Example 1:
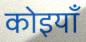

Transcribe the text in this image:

कोइयाँ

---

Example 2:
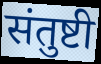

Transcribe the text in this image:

संतुष्टी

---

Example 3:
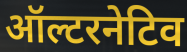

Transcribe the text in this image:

ऑल्टरनेटिव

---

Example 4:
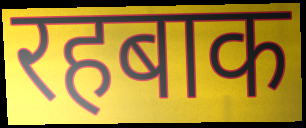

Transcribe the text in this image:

रहबाक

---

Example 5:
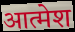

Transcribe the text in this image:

आत्मेश